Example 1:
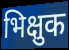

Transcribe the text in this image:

भिक्षुक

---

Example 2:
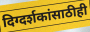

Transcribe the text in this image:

दिग्दर्शकांसाठीही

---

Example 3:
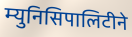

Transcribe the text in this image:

म्युनिसिपालिटीने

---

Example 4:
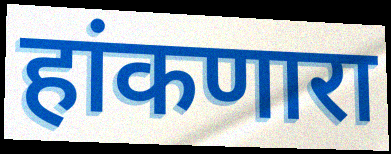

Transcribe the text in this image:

हांकणारा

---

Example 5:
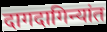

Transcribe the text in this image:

दागदागिन्यांत